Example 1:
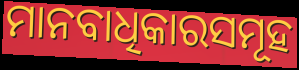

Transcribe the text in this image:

ମାନବାଧିକାରସମୂହ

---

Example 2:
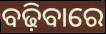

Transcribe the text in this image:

ବଢ଼ିବାରେ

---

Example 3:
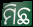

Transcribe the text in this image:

ମିଛ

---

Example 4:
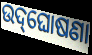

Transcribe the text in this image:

ଉଦ୍‌ଘୋଷଣା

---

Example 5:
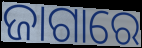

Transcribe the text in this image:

ଜାଗାରେ